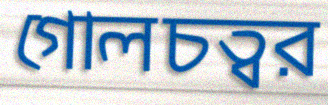
গোলচত্বর